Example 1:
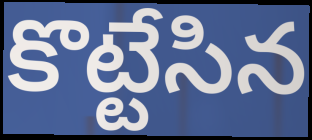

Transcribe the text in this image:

కొట్టేసిన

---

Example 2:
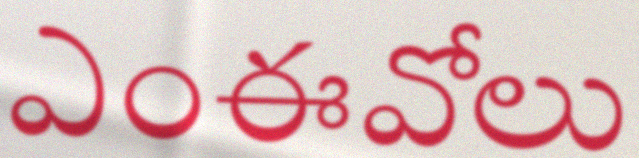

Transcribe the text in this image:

ఎంఈవోలు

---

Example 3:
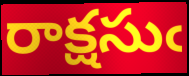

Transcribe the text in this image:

రాక్షసుఁ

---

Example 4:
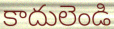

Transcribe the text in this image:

కాదులెండి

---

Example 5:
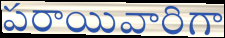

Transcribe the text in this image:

పరాయివారిగా